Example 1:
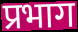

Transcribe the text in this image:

प्रभाग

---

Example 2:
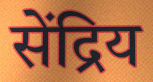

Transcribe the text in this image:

सेंद्रिय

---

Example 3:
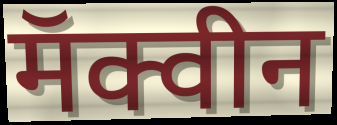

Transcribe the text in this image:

मॅक्वीन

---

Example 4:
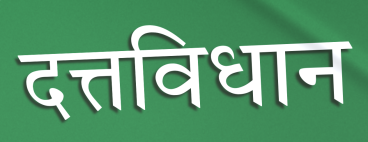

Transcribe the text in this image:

दत्तविधान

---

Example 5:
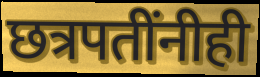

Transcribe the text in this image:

छत्रपतींनीही